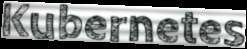
Kubernetes